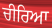
ਚੀਰਿਆ